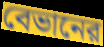
বেভানের